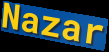
Nazar